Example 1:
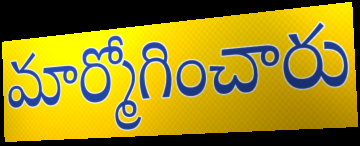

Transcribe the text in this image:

మార్మోగించారు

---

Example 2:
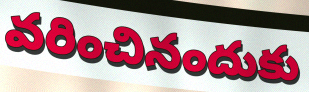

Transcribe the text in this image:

వరించినందుకు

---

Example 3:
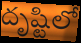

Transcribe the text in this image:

దృష్టిలో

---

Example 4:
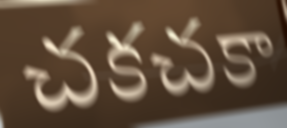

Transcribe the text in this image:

చకచకా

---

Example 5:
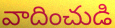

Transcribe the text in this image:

వాదించుడి